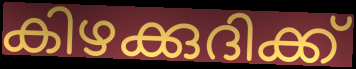
കിഴക്കുദിക്ക്